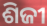
ଶିଜୀ